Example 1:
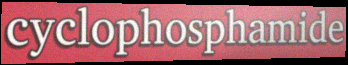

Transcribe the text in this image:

cyclophosphamide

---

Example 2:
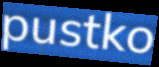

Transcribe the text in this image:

pustko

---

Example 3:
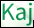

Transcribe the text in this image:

Kaj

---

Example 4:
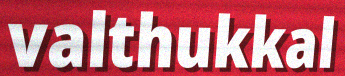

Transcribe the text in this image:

valthukkal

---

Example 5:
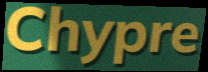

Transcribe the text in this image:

Chypre